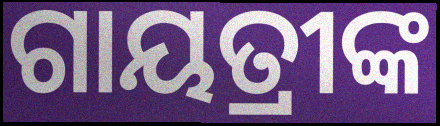
ଗାୟତ୍ରୀଙ୍କ